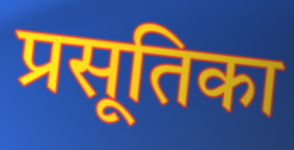
प्रसूतिका